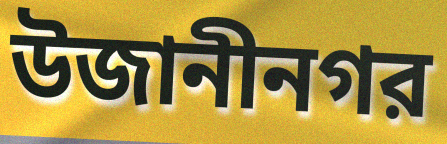
উজানীনগর